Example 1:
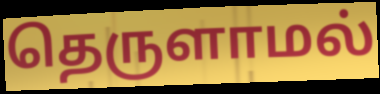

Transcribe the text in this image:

தெருளாமல்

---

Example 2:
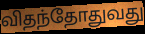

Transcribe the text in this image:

விதந்தோதுவது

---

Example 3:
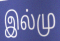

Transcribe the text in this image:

இல்மு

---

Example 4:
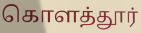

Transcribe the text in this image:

கொளத்தூர்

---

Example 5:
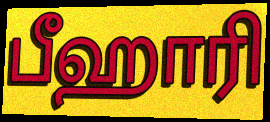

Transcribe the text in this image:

பீஹாரி